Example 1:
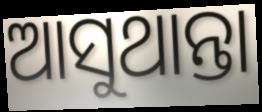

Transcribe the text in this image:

ଆସୁଥାନ୍ତା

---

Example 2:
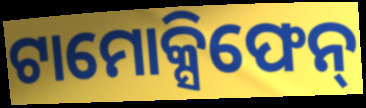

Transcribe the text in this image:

ଟାମୋକ୍ସିଫେନ୍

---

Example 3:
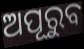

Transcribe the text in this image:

ଅପୂରୁବ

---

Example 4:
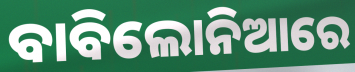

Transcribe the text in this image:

ବାବିଲୋନିଆରେ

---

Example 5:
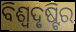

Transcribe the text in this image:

ବିଶ୍ୱଦୃଷ୍ଟିର